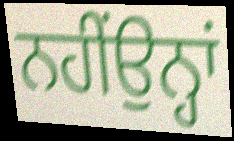
ਨਹੀਂਉਨ੍ਹਾਂ